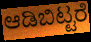
ಆಡಿಬಿಟ್ಟರೆ